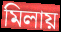
মিলায়